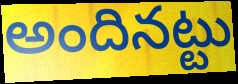
అందినట్టు